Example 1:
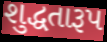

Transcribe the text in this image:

શુદ્ધતારૂપ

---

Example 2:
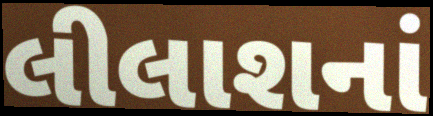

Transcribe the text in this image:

લીલાશનાં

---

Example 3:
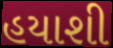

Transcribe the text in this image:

હયાશી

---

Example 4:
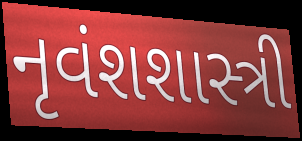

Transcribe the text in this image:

નૃવંશશાસ્ત્રી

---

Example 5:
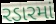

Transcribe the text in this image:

રડારમાં